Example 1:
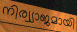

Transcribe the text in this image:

നിര്വ്യാജമായി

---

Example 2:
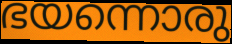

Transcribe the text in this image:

ഭയന്നൊരു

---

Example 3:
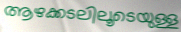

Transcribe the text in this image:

ആഴക്കടലിലൂടെയുള്ള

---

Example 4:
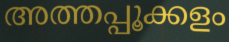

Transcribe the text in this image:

അത്തപ്പൂക്കളം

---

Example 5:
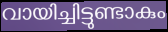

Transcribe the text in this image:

വായിച്ചിട്ടുണ്ടാകും